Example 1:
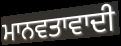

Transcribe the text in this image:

ਮਾਨਵਤਾਵਾਦੀ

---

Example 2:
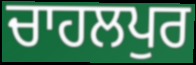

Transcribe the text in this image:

ਚਾਹਲਪੁਰ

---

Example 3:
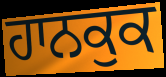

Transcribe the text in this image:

ਹਾਨਕੁਕ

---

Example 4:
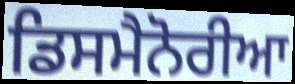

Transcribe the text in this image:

ਡਿਸਮੈਨੋਰੀਆ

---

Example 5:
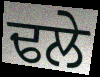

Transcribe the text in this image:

ਢਲੇ